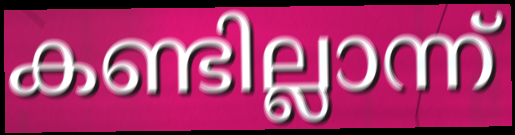
കണ്ടില്ലാന്ന്